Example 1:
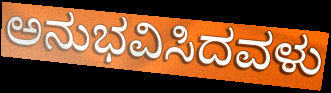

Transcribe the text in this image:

ಅನುಭವಿಸಿದವಳು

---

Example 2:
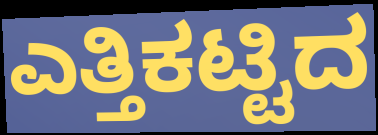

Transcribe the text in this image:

ಎತ್ತಿಕಟ್ಟಿದ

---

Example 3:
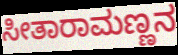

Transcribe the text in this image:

ಸೀತಾರಾಮಣ್ಣನ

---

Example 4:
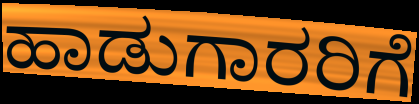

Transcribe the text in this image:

ಹಾಡುಗಾರರಿಗೆ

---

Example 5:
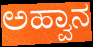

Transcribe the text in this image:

ಅಹ್ವಾನ